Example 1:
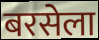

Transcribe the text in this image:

बरसेला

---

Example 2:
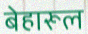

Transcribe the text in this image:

बेहारूल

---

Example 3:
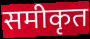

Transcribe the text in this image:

समीकृत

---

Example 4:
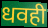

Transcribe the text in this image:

धवही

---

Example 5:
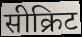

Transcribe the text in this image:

सीक्रिट